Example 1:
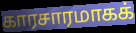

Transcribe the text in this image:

காரசாரமாகக்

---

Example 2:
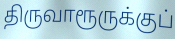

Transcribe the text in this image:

திருவாரூருக்குப்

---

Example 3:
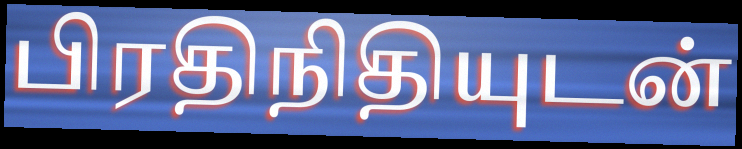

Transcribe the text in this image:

பிரதிநிதியுடன்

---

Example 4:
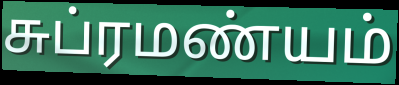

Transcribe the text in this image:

சுப்ரமண்யம்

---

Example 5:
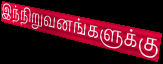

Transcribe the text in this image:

இந்நிறுவனங்களுக்கு